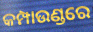
କମ୍ପାଉଣ୍ଡରେ